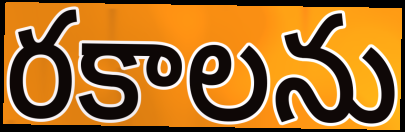
రకాలను